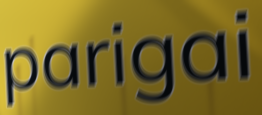
parigai